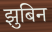
झुबिन